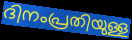
ദിനംപ്രതിയുള്ള